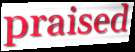
praised